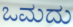
ಒಮದು